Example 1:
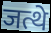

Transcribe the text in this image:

जत्थे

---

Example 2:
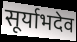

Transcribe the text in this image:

सूर्याभदेव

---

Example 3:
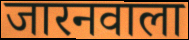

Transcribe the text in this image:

जारनवाला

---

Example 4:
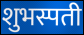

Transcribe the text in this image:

शुभस्पती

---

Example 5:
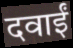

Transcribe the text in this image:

दवाईं